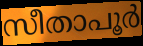
സീതാപൂർ